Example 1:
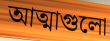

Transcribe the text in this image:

আত্মাগুলো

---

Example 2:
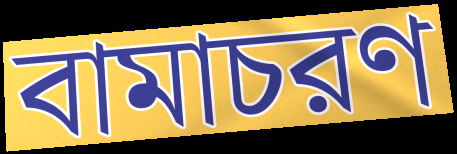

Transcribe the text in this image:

বামাচরণ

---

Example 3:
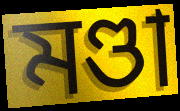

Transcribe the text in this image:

মণ্ডা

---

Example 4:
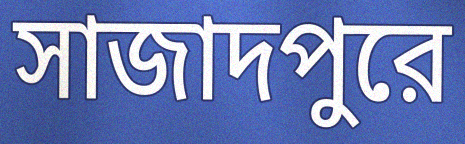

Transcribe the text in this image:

সাজাদপুরে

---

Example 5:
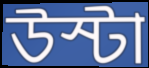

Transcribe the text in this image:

উস্টা